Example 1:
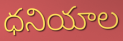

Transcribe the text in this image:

ధనియాల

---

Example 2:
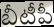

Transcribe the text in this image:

బీటీపీ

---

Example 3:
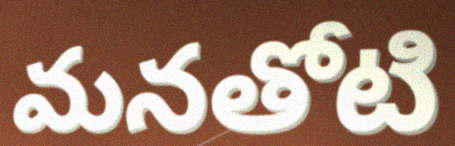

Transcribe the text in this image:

మనతోటి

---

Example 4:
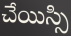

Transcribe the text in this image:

చేయిస్సి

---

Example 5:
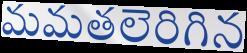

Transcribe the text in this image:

మమతలెరిగిన